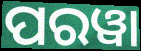
ପରୱା